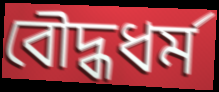
বৌদ্ধধর্ম